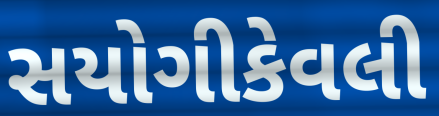
સયોગીકેવલી